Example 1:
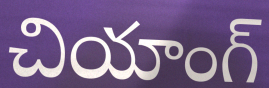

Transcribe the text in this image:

చియాంగ్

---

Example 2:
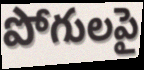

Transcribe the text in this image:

పోగులపై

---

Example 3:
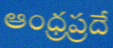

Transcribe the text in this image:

ఆంధ్రప్రదే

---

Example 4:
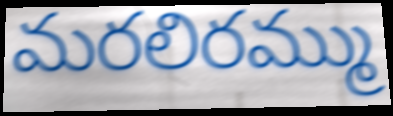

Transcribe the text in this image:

మరలిరమ్ము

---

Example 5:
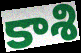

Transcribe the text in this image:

కాశి